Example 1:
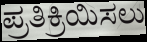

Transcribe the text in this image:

ಪ್ರತಿಕ್ರಿಯಿಸಲು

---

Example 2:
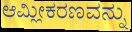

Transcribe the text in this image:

ಆಮ್ಲೀಕರಣವನ್ನು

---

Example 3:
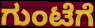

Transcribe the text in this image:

ಗುಂಟೆಗೆ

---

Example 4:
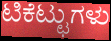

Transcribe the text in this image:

ಟಿಕೆಟ್ಟುಗಳು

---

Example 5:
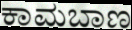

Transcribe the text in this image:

ಕಾಮಬಾಣ